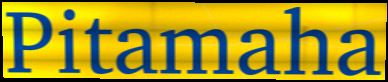
Pitamaha